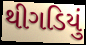
થીગડિયું